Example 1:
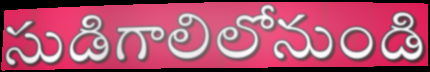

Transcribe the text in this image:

సుడిగాలిలోనుండి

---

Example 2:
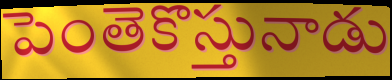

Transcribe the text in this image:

పెంతెకొస్తునాడు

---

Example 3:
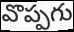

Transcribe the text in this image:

వొప్పగు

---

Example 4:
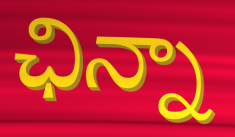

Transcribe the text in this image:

ఛిన్నా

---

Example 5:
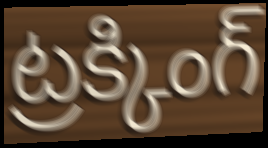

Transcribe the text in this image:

ట్రక్కింగ్